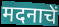
मदनाचें